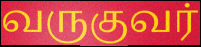
வருகுவர்